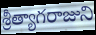
శ్రీత్యాగరాజుని